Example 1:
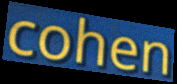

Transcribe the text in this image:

cohen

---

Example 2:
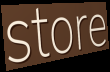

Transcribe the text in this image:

store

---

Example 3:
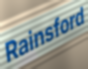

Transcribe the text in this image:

Rainsford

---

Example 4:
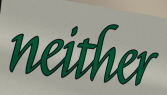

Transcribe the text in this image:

neither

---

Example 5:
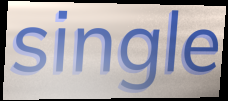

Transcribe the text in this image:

single